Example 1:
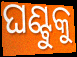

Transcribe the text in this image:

ଘଣ୍ଟୁକୁ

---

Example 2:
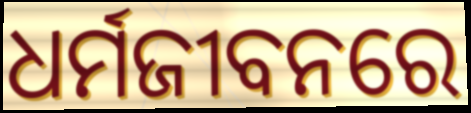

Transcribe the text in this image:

ଧର୍ମଜୀବନରେ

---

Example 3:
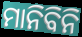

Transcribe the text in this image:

ମାନିବିନି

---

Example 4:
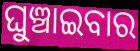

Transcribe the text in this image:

ଘୁଞ୍ଚାଇବାର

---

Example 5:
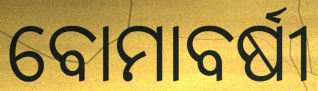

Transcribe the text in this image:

ବୋମାବର୍ଷୀ